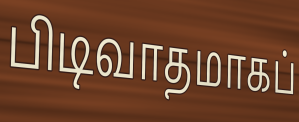
பிடிவாதமாகப்